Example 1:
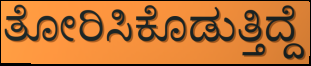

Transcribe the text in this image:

ತೋರಿಸಿಕೊಡುತ್ತಿದ್ದೆ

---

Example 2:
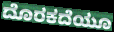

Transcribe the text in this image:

ದೊರಕದೆಯೂ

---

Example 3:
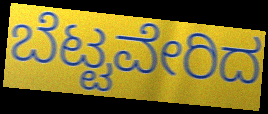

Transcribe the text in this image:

ಬೆಟ್ಟವೇರಿದ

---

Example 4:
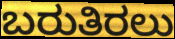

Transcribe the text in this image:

ಬರುತಿರಲು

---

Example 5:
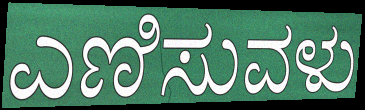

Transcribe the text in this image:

ಎಣಿಸುವಳು